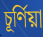
চূর্ণিয়া